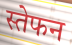
स्तेफन